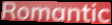
Romantic